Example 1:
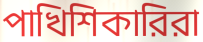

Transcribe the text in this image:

পাখিশিকারিরা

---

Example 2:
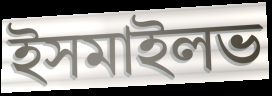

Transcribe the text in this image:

ইসমাইলভ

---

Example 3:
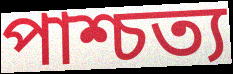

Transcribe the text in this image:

পাশ্চত্য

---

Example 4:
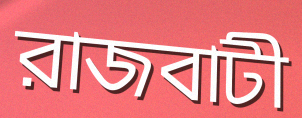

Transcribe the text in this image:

রাজবাটী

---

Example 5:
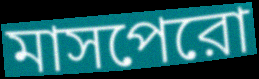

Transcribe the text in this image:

মাসপেরো